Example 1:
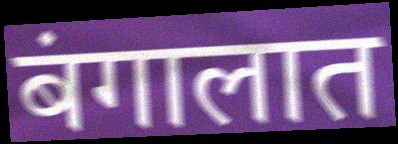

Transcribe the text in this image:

बंगालात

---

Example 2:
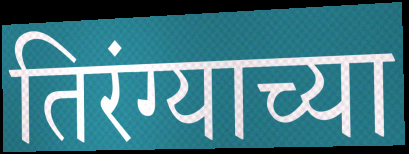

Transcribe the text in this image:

तिरंग्याच्या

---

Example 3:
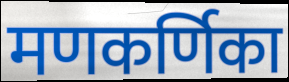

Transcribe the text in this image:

मणकर्णिका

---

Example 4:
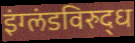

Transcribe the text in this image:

इंग्लंडविरुद्ध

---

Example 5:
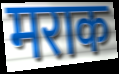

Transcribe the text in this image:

मराक